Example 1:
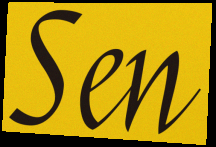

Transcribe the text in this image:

Sen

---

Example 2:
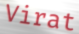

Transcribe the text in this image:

Virat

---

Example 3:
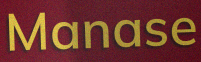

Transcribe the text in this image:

Manase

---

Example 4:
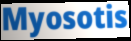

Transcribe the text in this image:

Myosotis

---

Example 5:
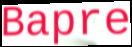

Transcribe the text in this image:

Bapre